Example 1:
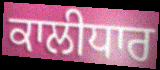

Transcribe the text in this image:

ਕਾਲੀਧਾਰ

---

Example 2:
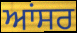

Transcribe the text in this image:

ਆਂਸਰ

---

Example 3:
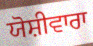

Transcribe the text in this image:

ਯੋਸ਼ੀਵਾਰਾ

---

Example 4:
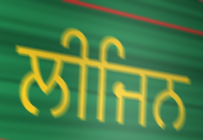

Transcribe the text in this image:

ਲੀਜਿਨ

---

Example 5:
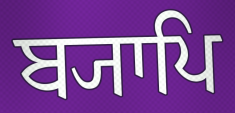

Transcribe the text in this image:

ਬ੍ਯਾਪਿ